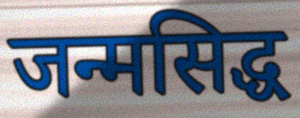
जन्मसिद्ध